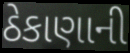
ઠેકાણાની